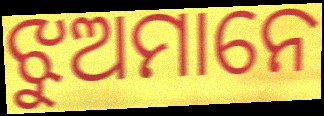
ଝୁଅମାନେ